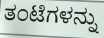
ತಂಟೆಗಳನ್ನು